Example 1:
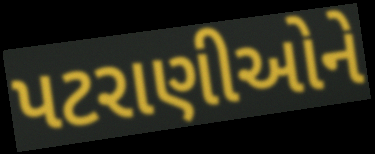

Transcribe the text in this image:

પટરાણીઓને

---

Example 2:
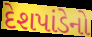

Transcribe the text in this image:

દેશપાંડેનો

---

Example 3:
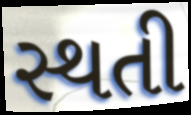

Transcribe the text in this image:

સ્થતી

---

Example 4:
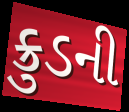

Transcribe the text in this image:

ક્રુડની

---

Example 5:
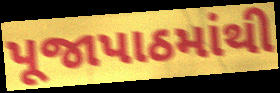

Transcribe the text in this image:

પૂજાપાઠમાંથી